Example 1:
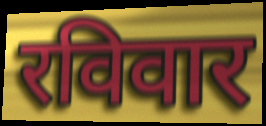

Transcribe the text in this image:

रविवार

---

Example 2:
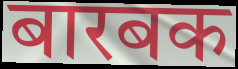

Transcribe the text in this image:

बारबक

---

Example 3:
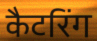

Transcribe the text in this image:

कैटरिंग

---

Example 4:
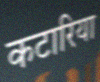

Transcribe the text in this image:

कटारिया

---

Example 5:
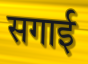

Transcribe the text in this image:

सगाई